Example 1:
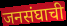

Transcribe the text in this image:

जनसंघाची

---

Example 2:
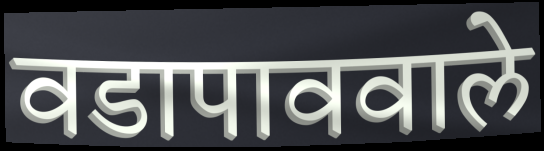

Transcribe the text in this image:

वडापाववाले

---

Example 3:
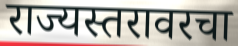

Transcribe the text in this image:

राज्यस्तरावरचा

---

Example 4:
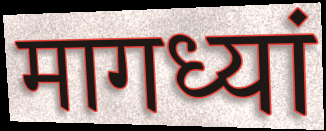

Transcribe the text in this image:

मागध्यां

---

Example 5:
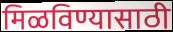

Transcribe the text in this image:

मिळविण्यासाठी